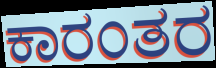
ಕಾರಂತರ